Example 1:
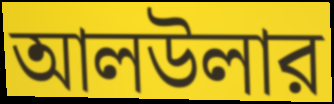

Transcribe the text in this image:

আলউলার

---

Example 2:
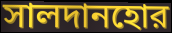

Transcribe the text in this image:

সালদানহোর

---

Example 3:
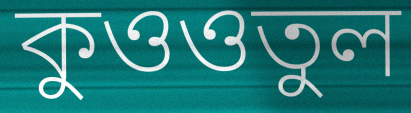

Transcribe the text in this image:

কুওওতুল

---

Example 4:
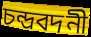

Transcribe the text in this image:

চন্দ্রবদনী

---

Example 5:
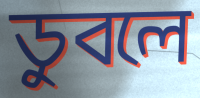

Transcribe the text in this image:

ডুবলে